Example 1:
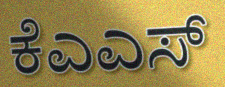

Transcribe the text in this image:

ಕೆಎಎಸ್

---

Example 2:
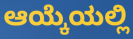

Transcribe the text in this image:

ಆಯ್ಕೆಯಲ್ಲಿ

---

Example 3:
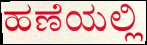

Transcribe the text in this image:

ಹಣೆಯಲ್ಲಿ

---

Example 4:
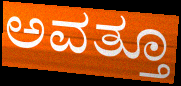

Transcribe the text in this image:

ಅವತ್ತೂ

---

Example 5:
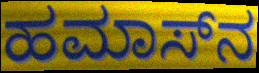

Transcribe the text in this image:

ಹಮಾಸ್‌ನ